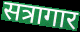
सत्रागार